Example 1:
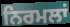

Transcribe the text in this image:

ਨਿਰਮਲਾਂ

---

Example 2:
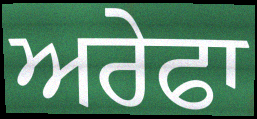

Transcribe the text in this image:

ਅਰੇਫਾ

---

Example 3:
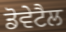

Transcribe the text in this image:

ਡੋਵੇਟੈਲ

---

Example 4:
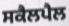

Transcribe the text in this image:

ਸਕੈਲਪੈਲ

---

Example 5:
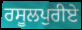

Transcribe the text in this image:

ਰਸੂਲਪੁਰੀਏ